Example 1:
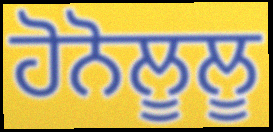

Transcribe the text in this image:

ਹੋਨੋਲੂਲੂ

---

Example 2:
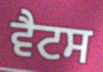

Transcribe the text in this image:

ਵੈਟਸ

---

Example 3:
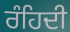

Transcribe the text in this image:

ਰੰਹਿਦੀ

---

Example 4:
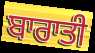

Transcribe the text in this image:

ਬਾਰਾਤੀ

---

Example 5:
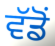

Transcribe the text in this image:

ਵੱਡੋਂ